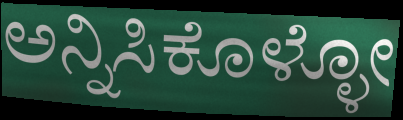
ಅನ್ನಿಸಿಕೊಳ್ಳೋ